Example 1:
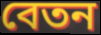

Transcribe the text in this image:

বেতন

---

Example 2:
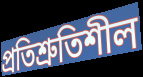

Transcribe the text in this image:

প্রতিশ্রুতিশীল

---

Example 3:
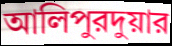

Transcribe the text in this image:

আলিপুরদুয়ার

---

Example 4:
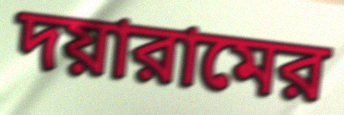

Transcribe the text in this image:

দয়ারামের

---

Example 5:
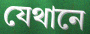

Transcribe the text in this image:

যেথানে